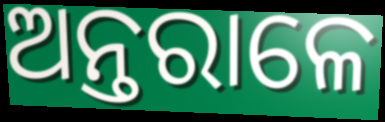
ଅନ୍ତରାଳେ